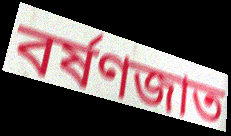
বর্ষণজাত